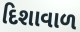
દિશાવાળ